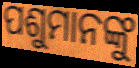
ପଶୁମାନଙ୍କୁ